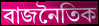
বাজনৈতিক